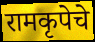
रामकृपेचे